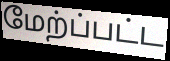
மேற்ப்பட்ட